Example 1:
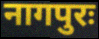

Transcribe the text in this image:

नागपुरः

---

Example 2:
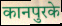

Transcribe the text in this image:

कानपुरके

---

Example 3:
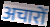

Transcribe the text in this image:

अचारों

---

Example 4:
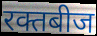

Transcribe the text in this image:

रक्तबीज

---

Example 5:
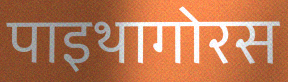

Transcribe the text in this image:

पाइथागोरस